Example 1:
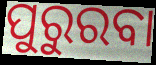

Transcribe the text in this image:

ପୁରୁରବା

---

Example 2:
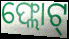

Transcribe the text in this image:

ଫ୍ଲୋଟ୍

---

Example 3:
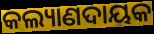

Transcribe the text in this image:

କଲ୍ୟାଣଦାୟକ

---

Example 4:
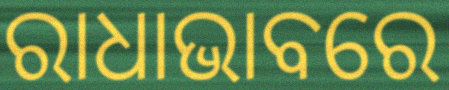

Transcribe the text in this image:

ରାଧାଭାବରେ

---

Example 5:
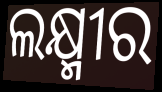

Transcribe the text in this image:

ଲକ୍ଷ୍ମୀର